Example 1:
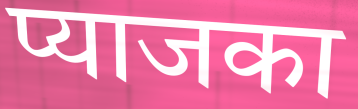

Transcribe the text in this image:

प्याजका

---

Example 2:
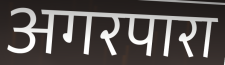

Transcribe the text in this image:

अगरपारा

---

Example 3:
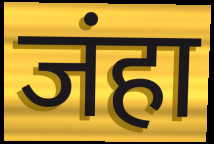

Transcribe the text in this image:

जंहा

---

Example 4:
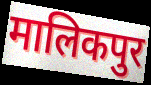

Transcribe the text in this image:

मालिकपुर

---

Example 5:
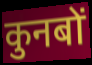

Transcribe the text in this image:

कुनबों